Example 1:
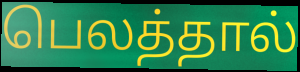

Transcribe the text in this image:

பெலத்தால்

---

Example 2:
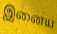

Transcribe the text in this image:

இனைய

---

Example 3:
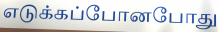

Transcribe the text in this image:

எடுக்கப்போனபோது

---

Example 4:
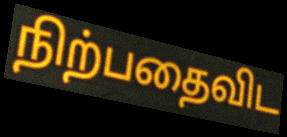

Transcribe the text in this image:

நிற்பதைவிட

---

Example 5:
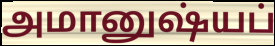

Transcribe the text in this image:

அமானுஷ்யப்